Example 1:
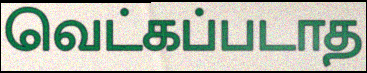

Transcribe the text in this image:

வெட்கப்படாத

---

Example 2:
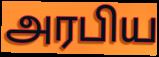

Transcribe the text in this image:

அரபிய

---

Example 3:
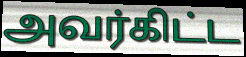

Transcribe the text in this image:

அவர்கிட்ட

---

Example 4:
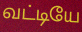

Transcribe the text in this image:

வட்டியே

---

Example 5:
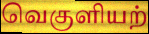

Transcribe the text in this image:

வெகுளியற்